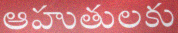
ఆహుతులకు